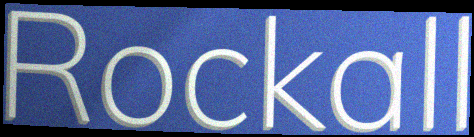
Rockall